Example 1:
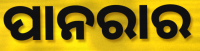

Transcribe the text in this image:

ପାନରାର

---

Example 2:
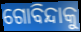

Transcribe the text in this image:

ଗୋବିନ୍ଦାକୁ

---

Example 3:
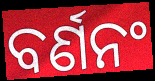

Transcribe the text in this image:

ବର୍ଣନଂ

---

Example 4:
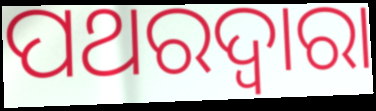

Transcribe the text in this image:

ପଥରଦ୍ୱାରା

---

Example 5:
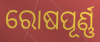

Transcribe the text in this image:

ରୋଷପୂର୍ଣ୍ଣ